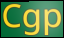
Cgp